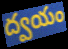
ద్వయం